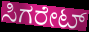
ಸಿಗರೇಟ್